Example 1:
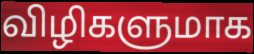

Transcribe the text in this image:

விழிகளுமாக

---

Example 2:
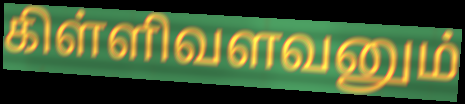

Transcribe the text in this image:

கிள்ளிவளவனும்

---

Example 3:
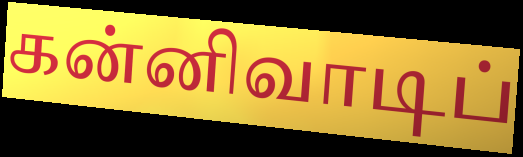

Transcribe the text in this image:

கன்னிவாடிப்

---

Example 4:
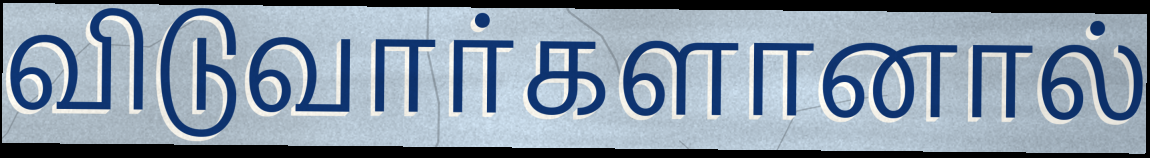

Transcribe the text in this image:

விடுவார்களானால்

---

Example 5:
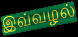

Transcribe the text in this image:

இவ்வழல்